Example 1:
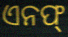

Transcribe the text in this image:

ଏନଫ୍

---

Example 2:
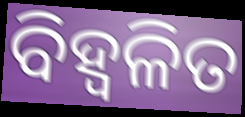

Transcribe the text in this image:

ବିହ୍ୱଳିତ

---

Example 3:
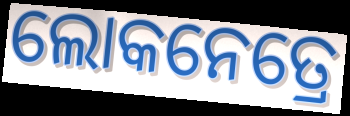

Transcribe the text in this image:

ଲୋକନେତ୍ରେ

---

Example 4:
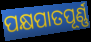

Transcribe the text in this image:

ପକ୍ଷପାତପୂର୍ଣ୍ଣ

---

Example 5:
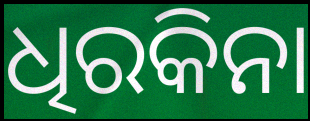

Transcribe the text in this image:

ଧିରକିନା